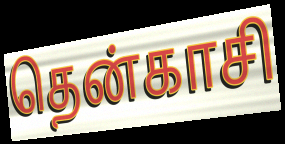
தென்காசி